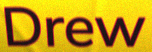
Drew